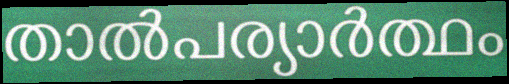
താൽപര്യാർത്ഥം